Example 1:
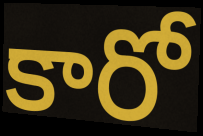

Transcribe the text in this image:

కారో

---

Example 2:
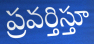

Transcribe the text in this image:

ప్రవర్తిస్తూ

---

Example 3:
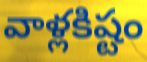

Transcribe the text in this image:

వాళ్లకిష్టం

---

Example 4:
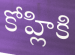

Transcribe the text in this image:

కోహ్లికి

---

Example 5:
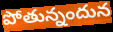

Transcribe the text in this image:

పోతున్నందున